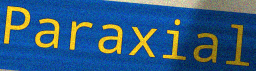
Paraxial